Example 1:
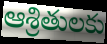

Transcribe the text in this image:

ఆశ్రితులకు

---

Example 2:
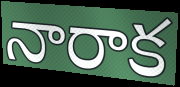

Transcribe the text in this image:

నారాక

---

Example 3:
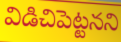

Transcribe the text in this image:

విడిచిపెట్టనని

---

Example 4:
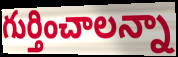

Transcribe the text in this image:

గుర్తించాలన్నా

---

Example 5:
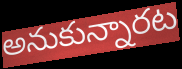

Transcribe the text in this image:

అనుకున్నారట